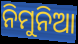
ନିମୁନିଆ